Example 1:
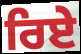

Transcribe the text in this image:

ਰਿਏ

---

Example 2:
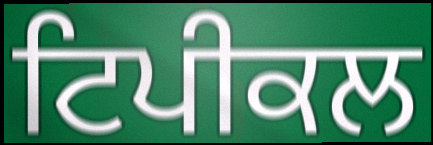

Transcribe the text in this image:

ਟਿਪੀਕਲ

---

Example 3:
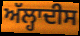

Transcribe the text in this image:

ਅੱਲ੍ਹਾਦੀਸ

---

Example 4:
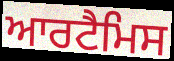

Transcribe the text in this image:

ਆਰਟੈਮਿਸ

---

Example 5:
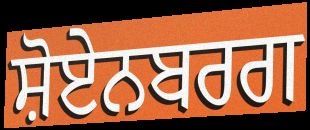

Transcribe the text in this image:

ਸ਼ੋਏਨਬਰਗ